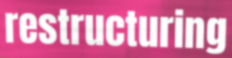
restructuring